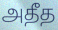
அதீத